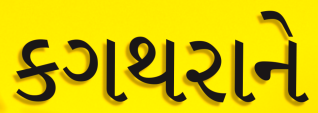
કગથરાને